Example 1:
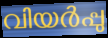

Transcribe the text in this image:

വിയർപ്പു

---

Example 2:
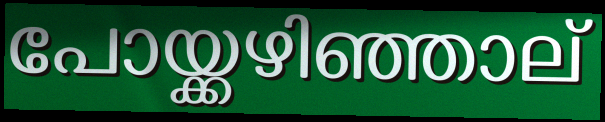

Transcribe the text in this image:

പോയ്ക്കഴിഞ്ഞാല്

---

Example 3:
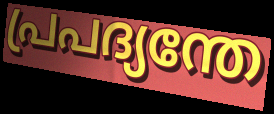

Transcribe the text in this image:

പ്രപദ്യന്തേ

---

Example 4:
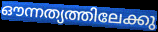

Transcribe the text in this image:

ഔന്നത്യത്തിലേക്കു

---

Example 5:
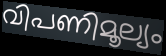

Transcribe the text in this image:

വിപണിമൂല്യം